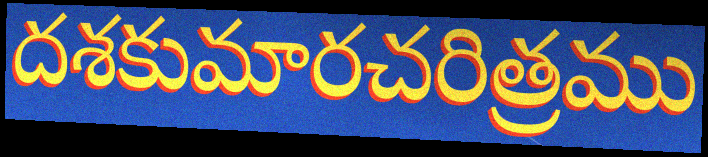
దశకుమారచరిత్రము